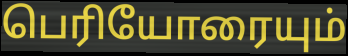
பெரியோரையும்